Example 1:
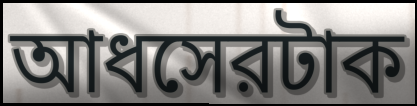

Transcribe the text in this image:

আধসেরটাক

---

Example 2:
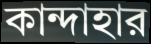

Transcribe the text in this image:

কান্দাহার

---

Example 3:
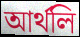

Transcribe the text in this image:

আর্থলি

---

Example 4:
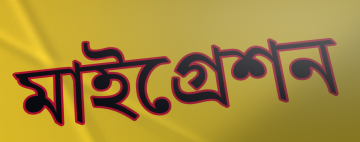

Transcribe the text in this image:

মাইগ্রেশন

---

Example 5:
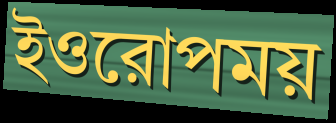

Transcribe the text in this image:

ইওরোপময়